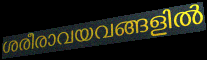
ശരീരാവയവങ്ങളിൽ